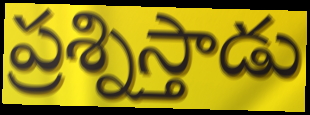
ప్రశ్నిస్తాడు